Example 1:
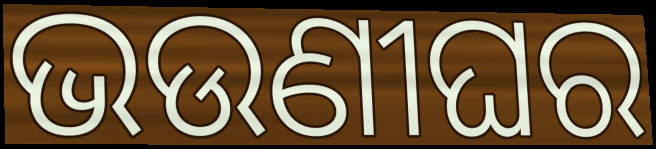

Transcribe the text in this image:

ଭଉଣୀଘର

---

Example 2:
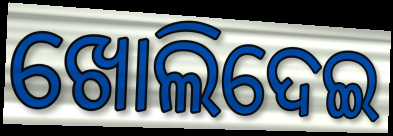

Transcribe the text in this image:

ଖୋଲିଦେଇ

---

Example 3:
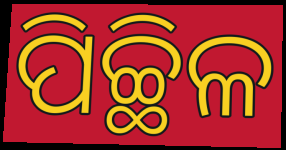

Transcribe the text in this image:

ପିଚ୍ଛିଳ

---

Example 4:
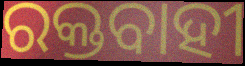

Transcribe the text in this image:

ରକ୍ତବାହୀ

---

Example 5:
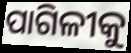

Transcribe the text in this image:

ପାଗିଳୀକୁ